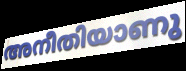
അനീതിയാണു